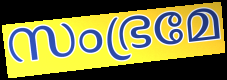
സംഭ്രമേ